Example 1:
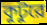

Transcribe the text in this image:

কুটুরে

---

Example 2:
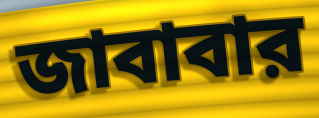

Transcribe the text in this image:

জাবাবার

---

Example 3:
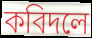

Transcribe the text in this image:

কবিদলে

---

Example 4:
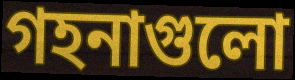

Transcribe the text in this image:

গহনাগুলো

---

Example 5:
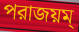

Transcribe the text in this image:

পরাজয়ম্